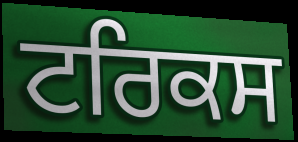
ਟਰਿਕਸ